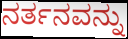
ನರ್ತನವನ್ನು